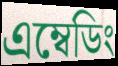
এম্বেডিং